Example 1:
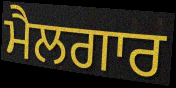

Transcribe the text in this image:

ਮੈਲਗਾਰ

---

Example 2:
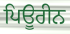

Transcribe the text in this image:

ਪਿਊਰੀਨ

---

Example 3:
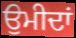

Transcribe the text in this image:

ਉਮੀਦਾਂ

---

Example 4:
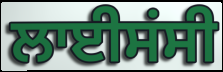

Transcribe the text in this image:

ਲਾਈਸਂਸੀ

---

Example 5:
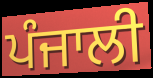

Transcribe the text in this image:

ਪੰਜਾਲੀ